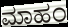
ಮಾಹಂ